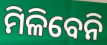
ମିଳିବେନି